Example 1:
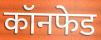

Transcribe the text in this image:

कॉनफेड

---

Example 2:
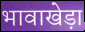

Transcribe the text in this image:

भावाखेड़ा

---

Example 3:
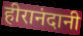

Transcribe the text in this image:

हीरानंदानी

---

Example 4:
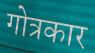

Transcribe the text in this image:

गोत्रकार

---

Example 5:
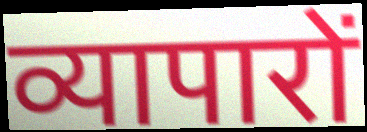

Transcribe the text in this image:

व्यापारों